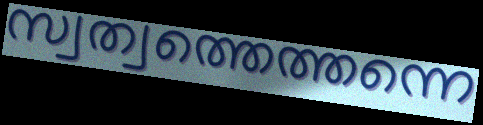
സ്വത്വത്തെത്തന്നെ